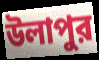
উলাপুর